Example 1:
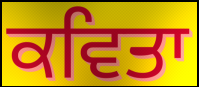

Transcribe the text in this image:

ਕਵਿਤਾ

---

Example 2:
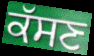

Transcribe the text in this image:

ਕੱਸਣ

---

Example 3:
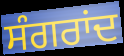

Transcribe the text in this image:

ਸੰਗਰਾਂਦ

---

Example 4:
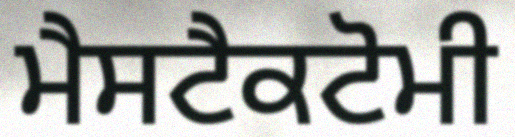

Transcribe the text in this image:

ਮੈਸਟੈਕਟੋਮੀ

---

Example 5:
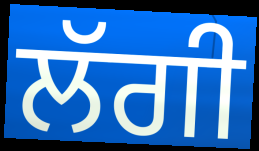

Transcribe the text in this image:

ਲੱਗੀ